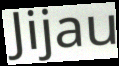
Jijau